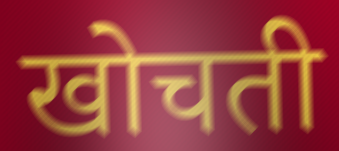
खोचती